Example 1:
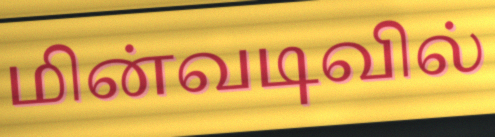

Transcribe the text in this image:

மின்வடிவில்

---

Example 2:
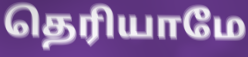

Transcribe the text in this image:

தெரியாமே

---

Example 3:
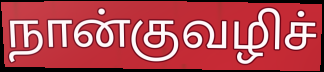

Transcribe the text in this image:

நான்குவழிச்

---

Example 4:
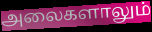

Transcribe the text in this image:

அலைகளாலும்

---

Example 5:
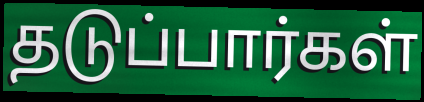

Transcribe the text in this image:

தடுப்பார்கள்